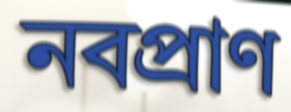
নবপ্রাণ